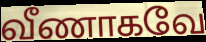
வீணாகவே